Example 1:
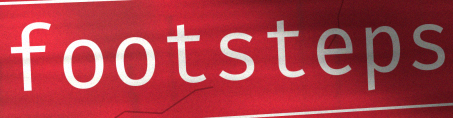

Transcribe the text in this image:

footsteps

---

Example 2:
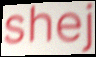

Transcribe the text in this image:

shej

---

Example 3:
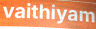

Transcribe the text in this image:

vaithiyam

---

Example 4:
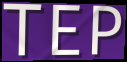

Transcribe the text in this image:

TEP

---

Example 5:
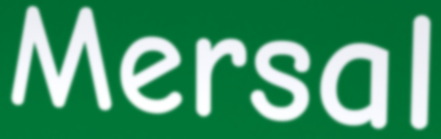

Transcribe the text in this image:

Mersal